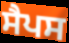
ਸੈਪਸ